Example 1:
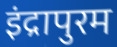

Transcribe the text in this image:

इंद्रापुरम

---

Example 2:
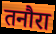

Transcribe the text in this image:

तनौरा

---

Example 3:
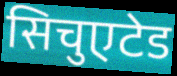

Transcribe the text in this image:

सिचुएटेड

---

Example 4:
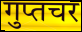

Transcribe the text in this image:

गुप्तचर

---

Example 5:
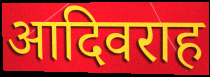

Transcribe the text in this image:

आदिवराह